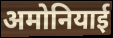
अमोनियाई